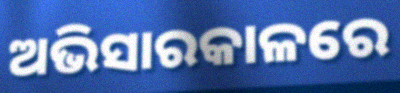
ଅଭିସାରକାଳରେ